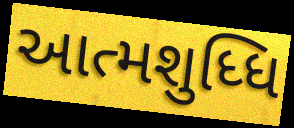
આત્મશુધ્ધિ